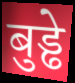
बुड्ढे